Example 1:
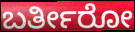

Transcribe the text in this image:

ಬರ್ತೀರೋ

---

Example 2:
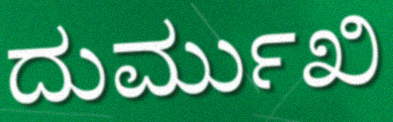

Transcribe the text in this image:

ದುರ್ಮುಖಿ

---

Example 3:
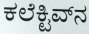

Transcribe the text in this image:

ಕಲೆಕ್ಟಿವ್‌ನ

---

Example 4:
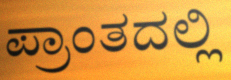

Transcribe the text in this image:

ಪ್ರಾಂತದಲ್ಲಿ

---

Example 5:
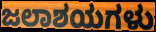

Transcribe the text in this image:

ಜಲಾಶಯಗಳು